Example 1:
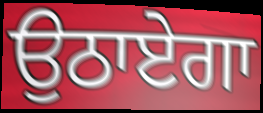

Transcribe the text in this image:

ਉਠਾਏਗਾ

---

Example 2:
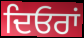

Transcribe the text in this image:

ਦਿਓਰਾਂ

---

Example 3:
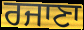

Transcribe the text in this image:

ਰਜਾਣਾ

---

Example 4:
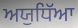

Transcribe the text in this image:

ਅਯੁਧਿੱਆ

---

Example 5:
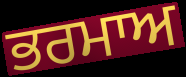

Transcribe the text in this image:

ਭਰਮਾਅ